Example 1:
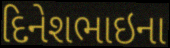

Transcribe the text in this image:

દિનેશભાઇના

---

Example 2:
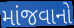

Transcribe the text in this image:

માંજવાનો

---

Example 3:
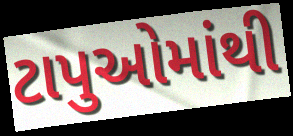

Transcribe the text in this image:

ટાપુઓમાંથી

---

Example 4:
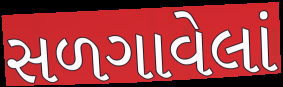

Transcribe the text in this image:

સળગાવેલાં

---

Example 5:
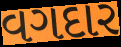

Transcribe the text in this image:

વગદાર